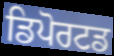
ਡਿਪੋਰਟਡ